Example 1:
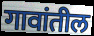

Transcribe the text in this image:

गावांतील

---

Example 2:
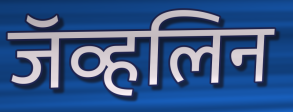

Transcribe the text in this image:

जॅव्हलिन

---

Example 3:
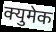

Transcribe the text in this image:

क्युमेक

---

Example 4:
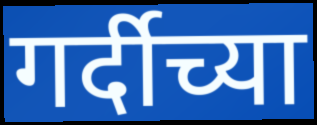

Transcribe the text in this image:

गर्दीच्या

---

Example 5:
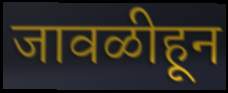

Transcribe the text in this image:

जावळीहून